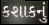
કશાકનું